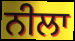
ਨੀਲਾ